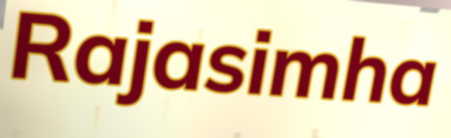
Rajasimha